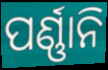
ପର୍ଣ୍ଣାନି